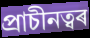
প্ৰাচীনত্বৰ